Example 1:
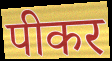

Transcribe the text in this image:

पीकर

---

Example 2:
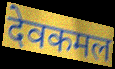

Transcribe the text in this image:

देवकमल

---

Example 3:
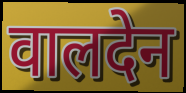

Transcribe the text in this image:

वालदेन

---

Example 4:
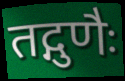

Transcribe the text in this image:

तद्गुणैः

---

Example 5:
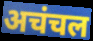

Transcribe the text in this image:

अचंचल